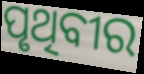
ପୃଥିବୀର